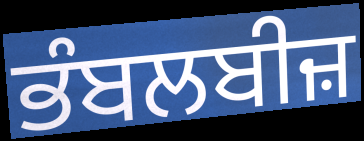
ਭੰਬਲਬੀਜ਼